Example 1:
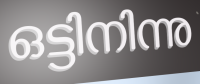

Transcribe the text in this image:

ഒട്ടിനിന്നു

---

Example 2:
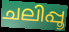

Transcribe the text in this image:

ചലിപ്പൂ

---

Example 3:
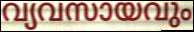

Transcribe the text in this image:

വ്യവസായവും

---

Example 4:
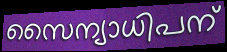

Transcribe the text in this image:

സൈന്യാധിപന്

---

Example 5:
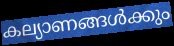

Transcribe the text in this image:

കല്യാണങ്ങൾക്കും